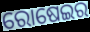
ରୋଷେଇର